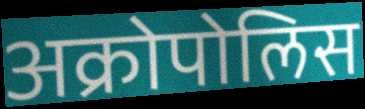
अक्रोपोलिस